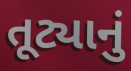
તૂટ્યાનું